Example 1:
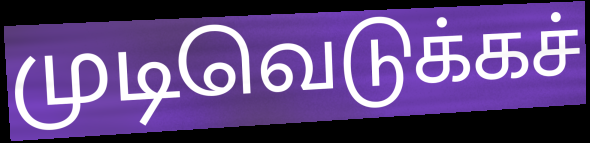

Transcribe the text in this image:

முடிவெடுக்கச்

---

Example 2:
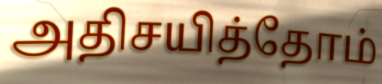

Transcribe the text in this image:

அதிசயித்தோம்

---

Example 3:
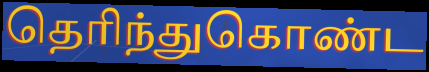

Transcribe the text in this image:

தெரிந்துகொண்ட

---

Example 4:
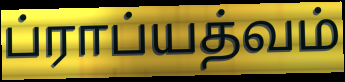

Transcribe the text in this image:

ப்ராப்யத்வம்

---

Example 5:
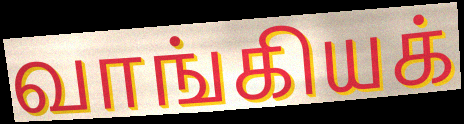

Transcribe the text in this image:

வாங்கியக்